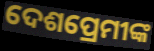
ଦେଶପ୍ରେମୀଙ୍କ